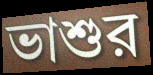
ভাশুর